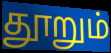
தூறும்